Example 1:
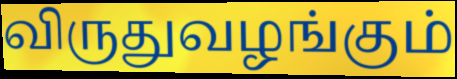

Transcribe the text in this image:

விருதுவழங்கும்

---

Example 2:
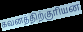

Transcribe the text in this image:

கவனத்திற்குரியன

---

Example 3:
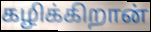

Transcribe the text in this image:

கழிக்கிறான்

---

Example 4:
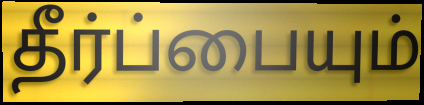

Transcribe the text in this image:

தீர்ப்பையும்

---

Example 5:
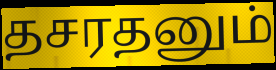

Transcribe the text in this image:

தசரதனும்